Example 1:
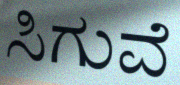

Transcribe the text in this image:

ಸಿಗುವೆ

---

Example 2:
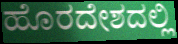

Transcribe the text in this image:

ಹೊರದೇಶದಲ್ಲಿ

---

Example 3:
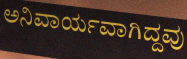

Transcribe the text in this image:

ಅನಿವಾರ್ಯವಾಗಿದ್ದವು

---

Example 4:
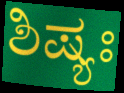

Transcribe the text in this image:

ಶಿಷ್ಯಃ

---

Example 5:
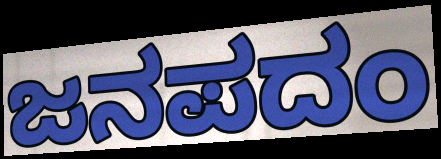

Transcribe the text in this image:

ಜನಪದಂ